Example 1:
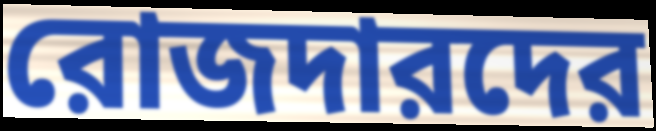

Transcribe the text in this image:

রোজদারদের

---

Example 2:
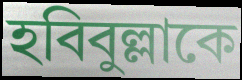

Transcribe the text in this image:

হবিবুল্লাকে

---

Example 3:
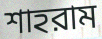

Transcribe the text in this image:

শাহরাম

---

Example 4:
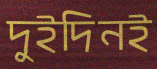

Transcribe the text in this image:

দুইদিনই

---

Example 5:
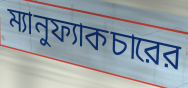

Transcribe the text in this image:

ম্যানুফ্যাকচারের